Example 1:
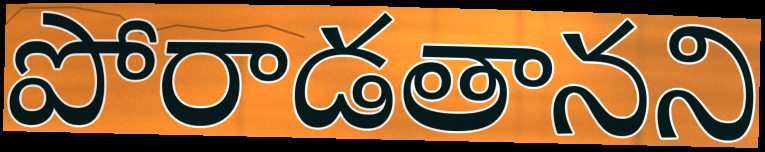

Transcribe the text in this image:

పోరాడతానని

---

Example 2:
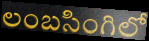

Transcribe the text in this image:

లంబసింగిలో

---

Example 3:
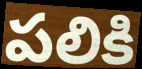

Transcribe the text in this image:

పలికి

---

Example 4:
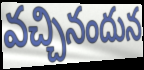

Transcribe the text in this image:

వచ్చినందున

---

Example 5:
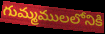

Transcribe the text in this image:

గుమ్మములలోనికి